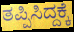
ತಪ್ಪಿಸಿದ್ದಕ್ಕೆ